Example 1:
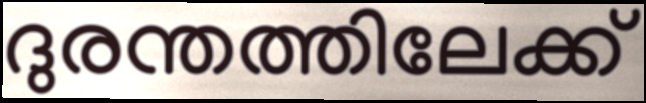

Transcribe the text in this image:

ദുരന്തത്തിലേക്ക്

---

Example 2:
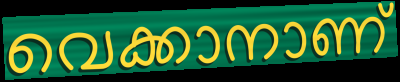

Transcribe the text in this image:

വെക്കാനാണ്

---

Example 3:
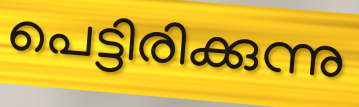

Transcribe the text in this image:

പെട്ടിരിക്കുന്നു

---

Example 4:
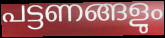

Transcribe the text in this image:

പട്ടണങ്ങളും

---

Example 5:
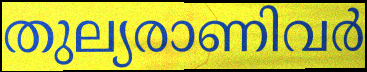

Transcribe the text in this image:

തുല്യരാണിവർ